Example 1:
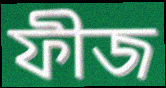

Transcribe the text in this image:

ফীজ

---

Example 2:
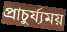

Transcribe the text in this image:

প্ৰাচুৰ্য্যময়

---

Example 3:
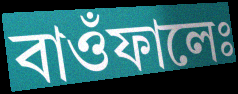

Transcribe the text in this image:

বাওঁফালেঃ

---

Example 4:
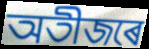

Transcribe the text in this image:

অতীজৰে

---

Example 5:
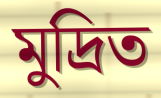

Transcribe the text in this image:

মুদ্ৰিত